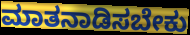
ಮಾತನಾಡಿಸಬೇಕು